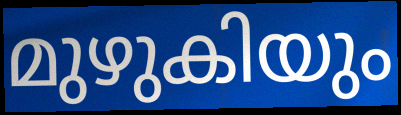
മുഴുകിയും